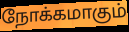
நோக்கமாகும்